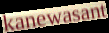
kanewasant